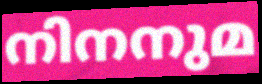
നിനനുമ